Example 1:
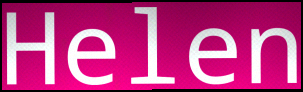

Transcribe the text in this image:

Helen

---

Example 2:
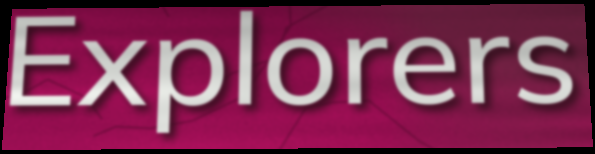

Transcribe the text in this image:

Explorers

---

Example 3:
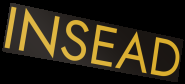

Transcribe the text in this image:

INSEAD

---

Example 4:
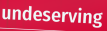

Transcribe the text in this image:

undeserving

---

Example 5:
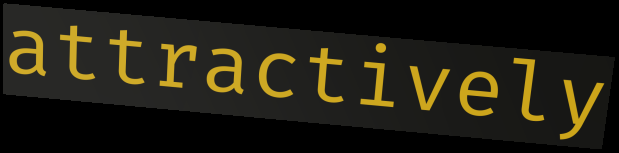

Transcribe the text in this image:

attractively